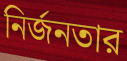
নির্জনতার